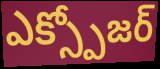
ఎక్స్పోజర్